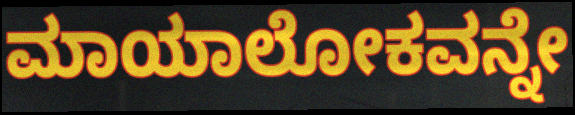
ಮಾಯಾಲೋಕವನ್ನೇ